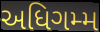
અધિગમ્મ